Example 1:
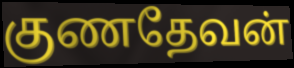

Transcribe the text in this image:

குணதேவன்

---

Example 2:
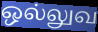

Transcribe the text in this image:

ஒல்லுவ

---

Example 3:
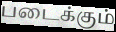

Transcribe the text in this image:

படைக்கும்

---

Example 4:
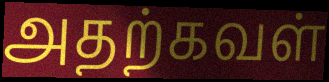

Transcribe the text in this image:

அதற்கவள்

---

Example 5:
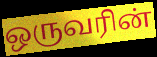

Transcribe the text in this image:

ஒருவரின்